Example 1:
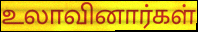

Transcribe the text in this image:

உலாவினார்கள்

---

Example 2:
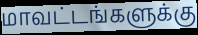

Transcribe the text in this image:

மாவட்டங்களுக்கு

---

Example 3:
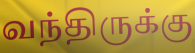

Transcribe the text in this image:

வந்திருக்கு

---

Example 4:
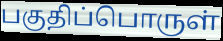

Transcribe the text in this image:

பகுதிப்பொருள்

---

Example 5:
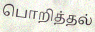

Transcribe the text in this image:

பொறித்தல்